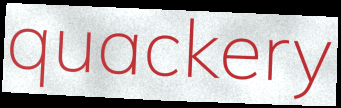
quackery